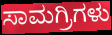
ಸಾಮಗ್ರಿಗಳು